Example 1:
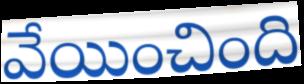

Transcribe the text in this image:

వేయించింది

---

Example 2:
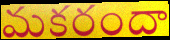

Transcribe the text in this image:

మకరందా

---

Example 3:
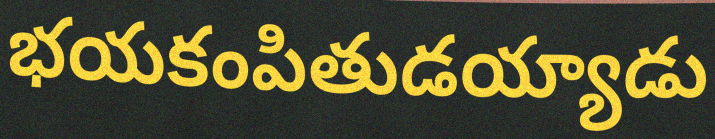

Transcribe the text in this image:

భయకంపితుడయ్యాడు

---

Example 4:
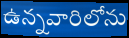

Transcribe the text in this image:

ఉన్నవారిలోను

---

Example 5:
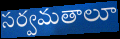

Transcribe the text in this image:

సర్వమతాలూ